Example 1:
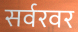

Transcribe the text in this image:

सर्वरवर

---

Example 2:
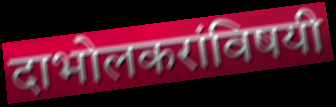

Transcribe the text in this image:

दाभोलकरांविषयी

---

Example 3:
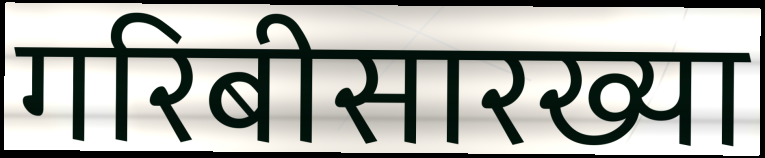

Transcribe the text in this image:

गरिबीसारख्या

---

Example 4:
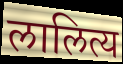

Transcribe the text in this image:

लालित्य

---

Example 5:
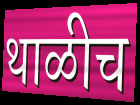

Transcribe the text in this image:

थाळीच